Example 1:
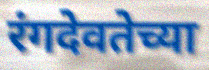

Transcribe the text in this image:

रंगदेवतेच्या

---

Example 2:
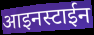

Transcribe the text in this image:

आइनस्टाईन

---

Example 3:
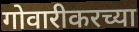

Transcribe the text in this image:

गोवारीकरच्या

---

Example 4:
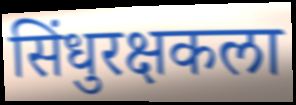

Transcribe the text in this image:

सिंधुरक्षकला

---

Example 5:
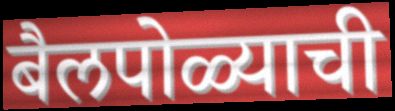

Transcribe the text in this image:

बैलपोळ्याची